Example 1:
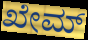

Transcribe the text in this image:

ಖೇಮ್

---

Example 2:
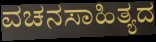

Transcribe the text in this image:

ವಚನಸಾಹಿತ್ಯದ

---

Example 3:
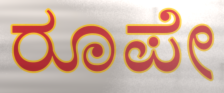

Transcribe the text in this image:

ರೂಪೇ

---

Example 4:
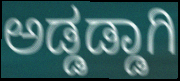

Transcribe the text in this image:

ಅಡ್ಡಡ್ಡಾಗಿ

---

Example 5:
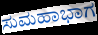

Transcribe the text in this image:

ಸುಮಹಾಭಾಗ